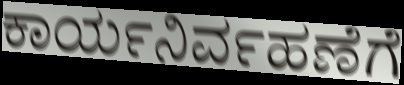
ಕಾರ್ಯನಿರ್ವಹಣೆಗೆ